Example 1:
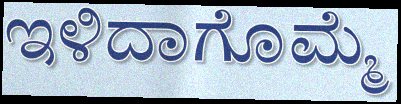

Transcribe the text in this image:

ಇಳಿದಾಗೊಮ್ಮೆ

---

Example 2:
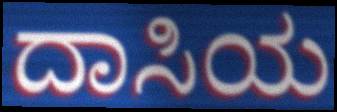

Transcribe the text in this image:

ದಾಸಿಯ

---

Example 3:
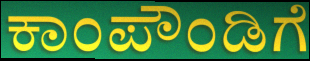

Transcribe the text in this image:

ಕಾಂಪೌಂಡಿಗೆ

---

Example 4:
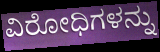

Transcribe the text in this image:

ವಿರೋಧಿಗಳನ್ನು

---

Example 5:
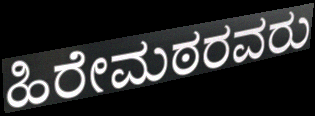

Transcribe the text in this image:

ಹಿರೇಮಠರವರು